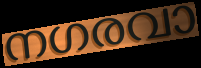
നഗരവാ